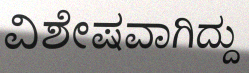
ವಿಶೇಷವಾಗಿದ್ದು